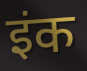
इंक